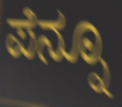
ಪೆನ್ನೂ